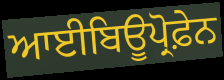
ਆਈਬਿਊਪ੍ਰੋਫ਼ੇਨ